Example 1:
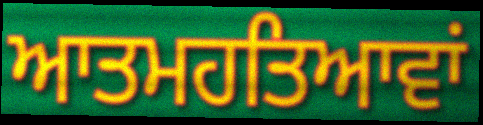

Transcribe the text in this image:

ਆਤਮਹਤਿਆਵਾਂ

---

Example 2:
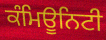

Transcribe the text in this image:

ਕੰਮਿਊਨਿਟੀ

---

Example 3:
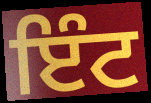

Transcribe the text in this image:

ਇੰਟ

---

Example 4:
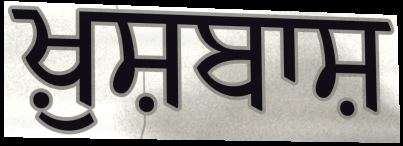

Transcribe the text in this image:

ਖ਼ੁਸ਼ਬਾਸ਼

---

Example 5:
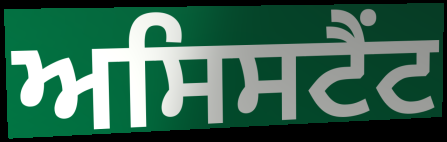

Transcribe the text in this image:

ਅਸਿਸਟੈਂਟ